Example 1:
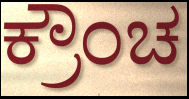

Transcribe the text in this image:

ಕ್ರೌಂಚ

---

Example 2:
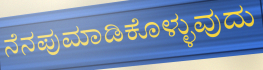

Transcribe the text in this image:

ನೆನಪುಮಾಡಿಕೊಳ್ಳುವುದು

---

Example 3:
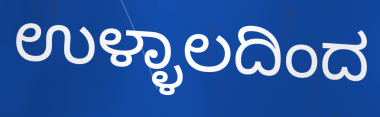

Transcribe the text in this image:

ಉಳ್ಳಾಲದಿಂದ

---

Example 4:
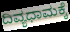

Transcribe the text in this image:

ದಿವ್ಯಧಾಮಕ್ಕೆ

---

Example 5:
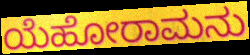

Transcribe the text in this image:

ಯೆಹೋರಾಮನು